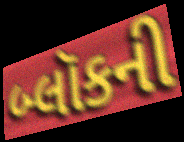
બ્લૉકની